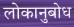
लोकानुबोध